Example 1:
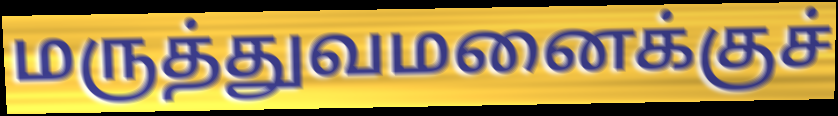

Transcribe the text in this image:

மருத்துவமனைக்குச்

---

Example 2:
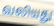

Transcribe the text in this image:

வலியது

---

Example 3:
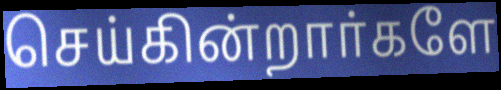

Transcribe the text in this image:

செய்கின்றார்களே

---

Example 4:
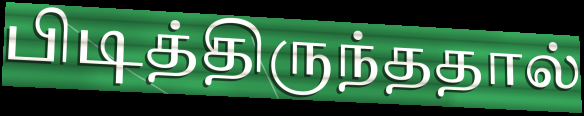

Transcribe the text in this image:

பிடித்திருந்ததால்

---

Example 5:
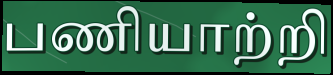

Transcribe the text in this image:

பணியாற்றி